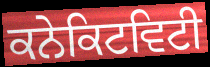
ਕਨੇਕਿਟਵਿਟੀ